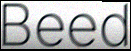
Beed